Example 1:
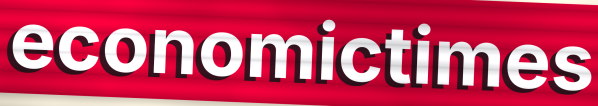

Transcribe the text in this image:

economictimes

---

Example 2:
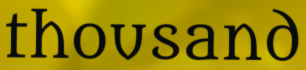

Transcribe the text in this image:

thousand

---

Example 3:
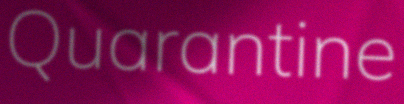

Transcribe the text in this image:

Quarantine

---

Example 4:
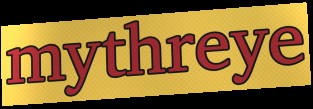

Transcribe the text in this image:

mythreye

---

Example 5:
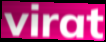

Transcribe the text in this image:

virat